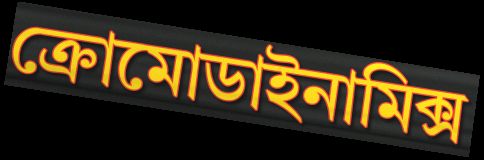
ক্রোমোডাইনামিক্স